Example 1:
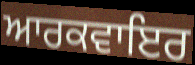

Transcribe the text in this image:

ਆਰਕਵਾਇਰ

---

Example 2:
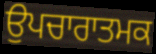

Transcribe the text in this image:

ਉਪਚਾਰਾਤਮਕ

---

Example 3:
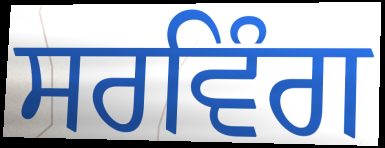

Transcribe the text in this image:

ਸਰਵਿੰਗ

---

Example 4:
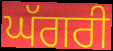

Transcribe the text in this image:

ਘੱਗਰੀ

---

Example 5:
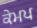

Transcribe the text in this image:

ਕੇਮਪ